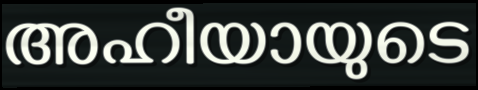
അഹീയായുടെ